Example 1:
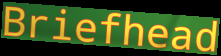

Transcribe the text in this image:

Briefhead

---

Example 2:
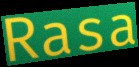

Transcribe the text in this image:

Rasa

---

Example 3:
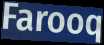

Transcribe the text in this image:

Farooq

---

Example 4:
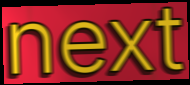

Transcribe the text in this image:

next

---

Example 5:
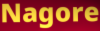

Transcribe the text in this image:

Nagore